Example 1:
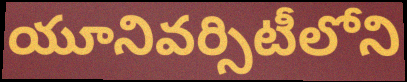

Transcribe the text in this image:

యూనివర్సిటీలోని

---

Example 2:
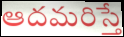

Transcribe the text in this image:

ఆదమరిస్తే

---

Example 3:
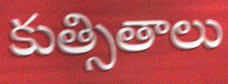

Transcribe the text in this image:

కుత్సితాలు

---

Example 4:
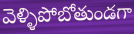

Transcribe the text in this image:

వెళ్ళిపోబోతుండగా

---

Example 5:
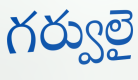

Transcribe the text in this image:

గర్వులై